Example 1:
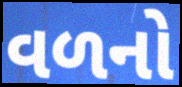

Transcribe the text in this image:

વળનો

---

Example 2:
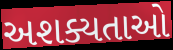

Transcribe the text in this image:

અશક્યતાઓ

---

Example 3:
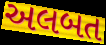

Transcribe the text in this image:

અલબત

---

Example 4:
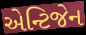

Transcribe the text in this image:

એન્ટિજેન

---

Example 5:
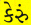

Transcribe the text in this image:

કેરું